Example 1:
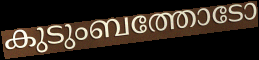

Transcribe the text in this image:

കുടുംബത്തോടോ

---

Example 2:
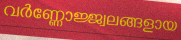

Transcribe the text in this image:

വർണ്ണോജ്ജ്വലങ്ങളായ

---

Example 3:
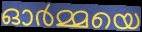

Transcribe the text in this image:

ഓർമ്മയെ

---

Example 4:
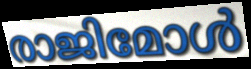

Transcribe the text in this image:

രാജിമോൾ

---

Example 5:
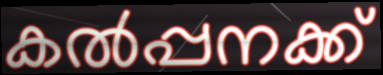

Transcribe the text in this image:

കൽപ്പനക്ക്